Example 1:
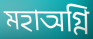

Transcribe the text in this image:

মহাঅগ্নি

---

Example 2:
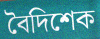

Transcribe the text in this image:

বৈদিশেক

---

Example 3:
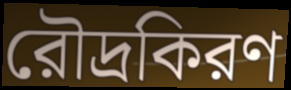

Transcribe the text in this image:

রৌদ্রকিরণ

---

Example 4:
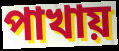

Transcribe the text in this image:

পাখায়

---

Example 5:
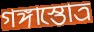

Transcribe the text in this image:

গঙ্গাস্তোত্র